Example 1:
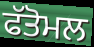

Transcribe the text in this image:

ਫੱਤੋਮਲ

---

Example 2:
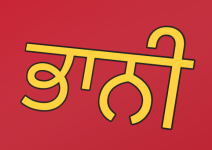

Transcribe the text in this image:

ਭਾਨੀ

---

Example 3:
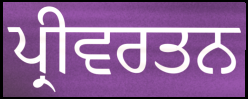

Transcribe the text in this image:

ਪ੍ਰੀਵਰਤਨ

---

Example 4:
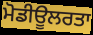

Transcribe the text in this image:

ਮੋਡੀਊਲਰਤਾ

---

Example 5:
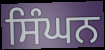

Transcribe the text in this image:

ਸਿੰਘਨ